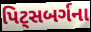
પિટ્સબર્ગના